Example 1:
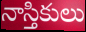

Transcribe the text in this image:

నాస్తికులు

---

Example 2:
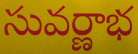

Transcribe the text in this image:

సువర్ణాభ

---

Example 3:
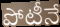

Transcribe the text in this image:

పోటీనే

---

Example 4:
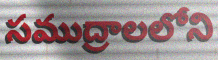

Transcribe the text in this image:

సముద్రాలలోని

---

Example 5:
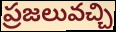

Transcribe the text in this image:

ప్రజలువచ్చి